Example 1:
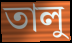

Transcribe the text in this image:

তালু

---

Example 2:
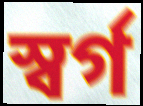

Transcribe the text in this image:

স্বৰ্গ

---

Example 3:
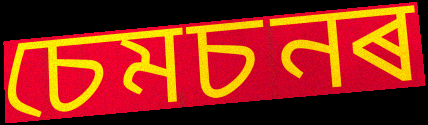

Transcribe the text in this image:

চেমচনৰ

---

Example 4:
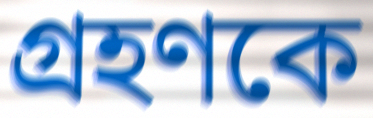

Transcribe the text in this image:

গ্ৰহণকে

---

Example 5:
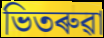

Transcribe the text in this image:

ভিতৰুৱা